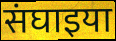
संघाइया